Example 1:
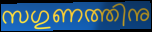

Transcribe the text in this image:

സഗുണത്തിനു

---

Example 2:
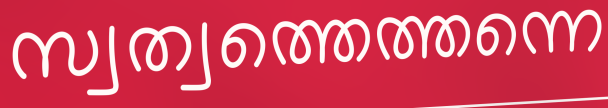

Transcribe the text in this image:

സ്വത്വത്തെത്തന്നെ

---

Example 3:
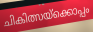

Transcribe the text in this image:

ചികിത്സയ്ക്കൊപ്പം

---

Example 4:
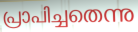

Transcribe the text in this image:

പ്രാപിച്ചതെന്നു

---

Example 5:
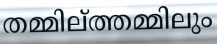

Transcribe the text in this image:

തമ്മില്ത്തമ്മിലും